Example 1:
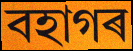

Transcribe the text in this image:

বহাগৰ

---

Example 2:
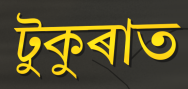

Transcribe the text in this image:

টুকুৰাত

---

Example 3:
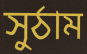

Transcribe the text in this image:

সুঠাম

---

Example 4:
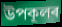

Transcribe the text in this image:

উপকূলৰ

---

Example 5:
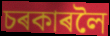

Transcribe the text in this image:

চৰকাৰলৈ